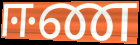
ஈண